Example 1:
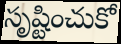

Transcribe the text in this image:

సృష్టించుకో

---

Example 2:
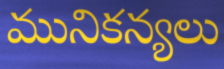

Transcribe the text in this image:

మునికన్యలు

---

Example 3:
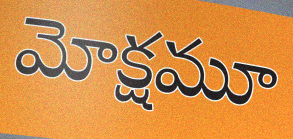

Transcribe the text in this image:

మోక్షమూ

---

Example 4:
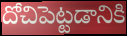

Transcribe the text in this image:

దోచిపెట్టడానికి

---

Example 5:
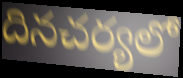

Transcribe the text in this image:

దినచర్యలో